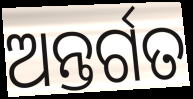
ଅନ୍ତର୍ଗତ